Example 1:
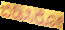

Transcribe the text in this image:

ಬಿಡಿಸಿರೋ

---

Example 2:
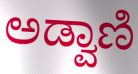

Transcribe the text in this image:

ಅಡ್ವಾಣಿ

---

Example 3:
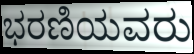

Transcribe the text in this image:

ಭರಣಿಯವರು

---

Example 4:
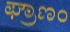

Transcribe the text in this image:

ಘ್ರಾಣಂ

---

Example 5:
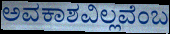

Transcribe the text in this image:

ಅವಕಾಶವಿಲ್ಲವೆಂಬ